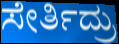
ಸೇರ್ತಿದ್ರು